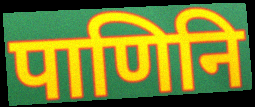
पाणिनि